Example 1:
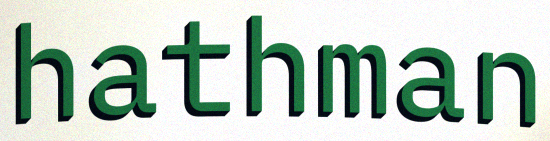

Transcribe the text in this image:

hathman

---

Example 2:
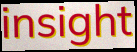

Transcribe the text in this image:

insight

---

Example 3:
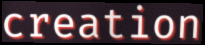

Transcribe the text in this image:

creation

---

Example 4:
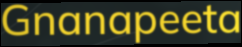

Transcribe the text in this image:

Gnanapeeta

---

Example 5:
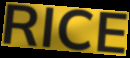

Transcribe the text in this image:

RICE